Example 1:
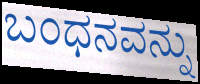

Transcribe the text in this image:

ಬಂಧನವನ್ನು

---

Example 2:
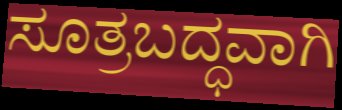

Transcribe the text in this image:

ಸೂತ್ರಬದ್ಧವಾಗಿ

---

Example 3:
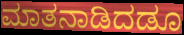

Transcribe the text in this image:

ಮಾತನಾಡಿದಡೂ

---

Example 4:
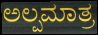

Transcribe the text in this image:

ಅಲ್ಪಮಾತ್ರ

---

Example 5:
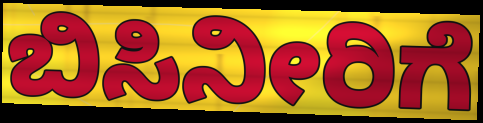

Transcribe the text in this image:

ಬಿಸಿನೀರಿಗೆ